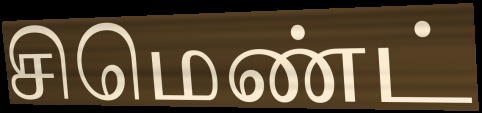
சிமெண்ட்